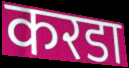
करडा